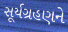
સૂર્યગ્રહણને